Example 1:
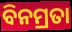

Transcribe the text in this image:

ବିନମ୍ରତା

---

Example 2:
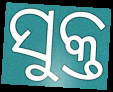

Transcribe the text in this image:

ସୁକ୍ତ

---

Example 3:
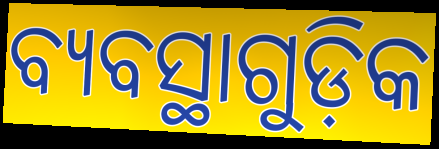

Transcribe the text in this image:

ବ୍ୟବସ୍ଥାଗୁଡ଼ିକ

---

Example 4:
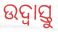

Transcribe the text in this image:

ଉଦ୍ବାସ୍ତୁ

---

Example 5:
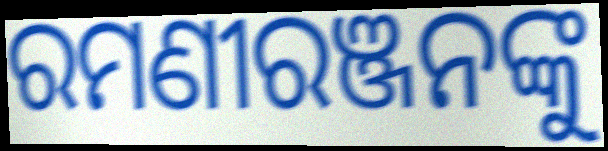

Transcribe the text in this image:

ରମଣୀରଞ୍ଜନଙ୍କୁ